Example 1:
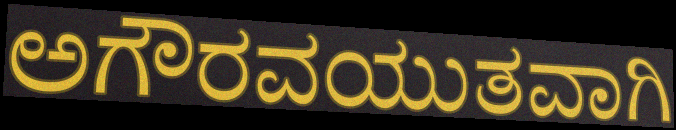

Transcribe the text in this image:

ಅಗೌರವಯುತವಾಗಿ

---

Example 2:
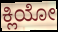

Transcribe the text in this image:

ಕ್ಲಿಯೋ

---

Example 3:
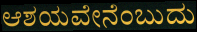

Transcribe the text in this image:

ಆಶಯವೇನೆಂಬುದು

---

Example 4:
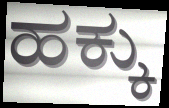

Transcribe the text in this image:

ಹಕ್ಕು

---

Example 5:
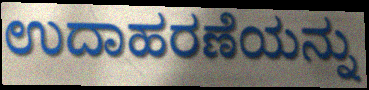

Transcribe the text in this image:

ಉದಾಹರಣೆಯನ್ನು